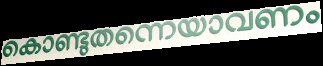
കൊണ്ടുതന്നെയാവണം